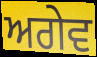
ਅਗੇਵ